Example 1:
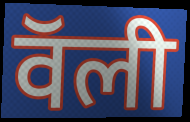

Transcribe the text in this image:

वॅली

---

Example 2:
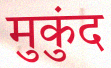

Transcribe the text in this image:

मुकुंद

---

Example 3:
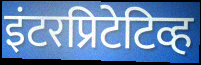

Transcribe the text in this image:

इंटरप्रिटेटिव्ह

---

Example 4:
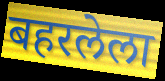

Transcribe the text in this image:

बहरलेला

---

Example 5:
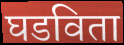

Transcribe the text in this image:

घडविता